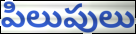
పిలుపులు